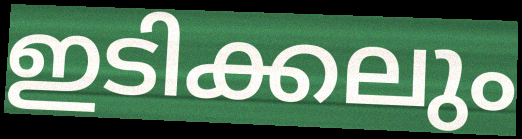
ഇടിക്കലും